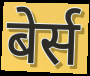
बेर्स